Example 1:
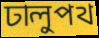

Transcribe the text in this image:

ঢালুপথ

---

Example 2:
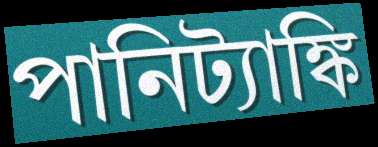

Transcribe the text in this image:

পানিট্যাঙ্কি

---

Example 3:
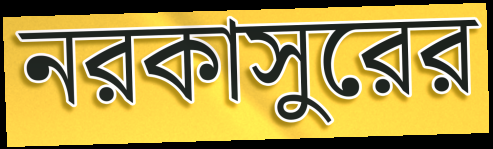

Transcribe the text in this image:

নরকাসুরের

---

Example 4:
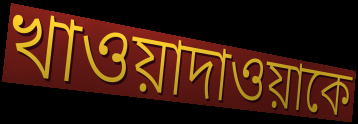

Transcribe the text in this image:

খাওয়াদাওয়াকে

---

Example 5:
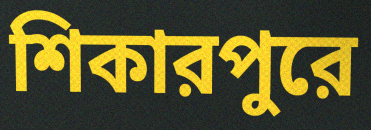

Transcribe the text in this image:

শিকারপুরে